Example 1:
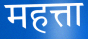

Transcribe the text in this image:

महत्ता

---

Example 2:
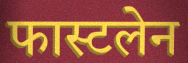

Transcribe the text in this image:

फास्टलेन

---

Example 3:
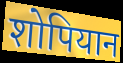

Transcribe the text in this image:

शोपियान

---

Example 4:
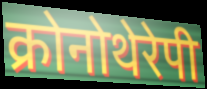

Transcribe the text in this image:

क्रोनोथेरेपी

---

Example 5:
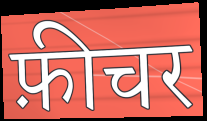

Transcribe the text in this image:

फ़ीचर